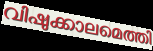
വിഷുക്കാലമെത്തി